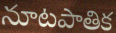
నూటపాతిక